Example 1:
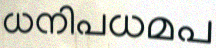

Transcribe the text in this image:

ധനിപധമപ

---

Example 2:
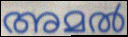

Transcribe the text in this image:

അമൽ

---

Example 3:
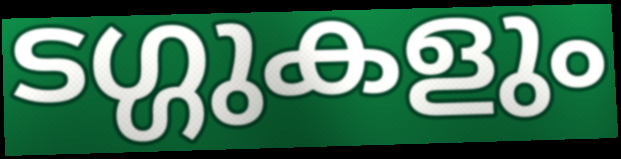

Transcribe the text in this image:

ടഗ്ഗുകളും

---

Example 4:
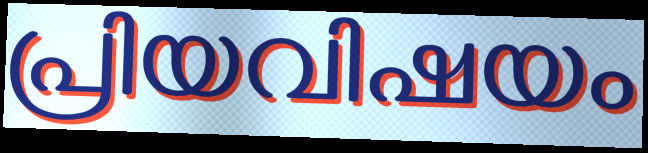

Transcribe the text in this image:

പ്രിയവിഷയം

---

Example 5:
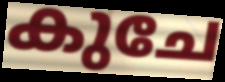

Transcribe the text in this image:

കുചേ